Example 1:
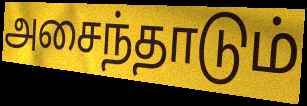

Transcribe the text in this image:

அசைந்தாடும்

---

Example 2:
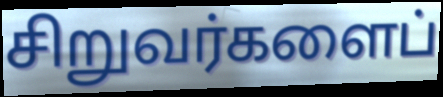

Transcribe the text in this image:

சிறுவர்களைப்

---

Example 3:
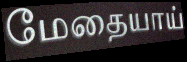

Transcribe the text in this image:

மேதையாய்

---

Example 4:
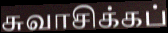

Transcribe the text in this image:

சுவாசிக்கப்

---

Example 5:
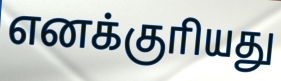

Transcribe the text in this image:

எனக்குரியது